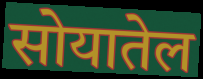
सोयातेल